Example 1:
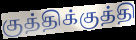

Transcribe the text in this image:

குத்திக்குத்தி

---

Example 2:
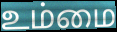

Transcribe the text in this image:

உம்மை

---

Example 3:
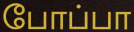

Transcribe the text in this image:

போப்பா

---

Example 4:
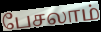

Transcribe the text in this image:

பேசலாம்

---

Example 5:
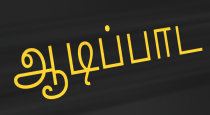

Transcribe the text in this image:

ஆடிப்பாட